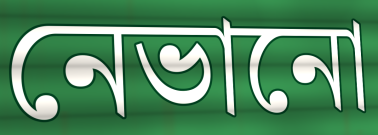
নেভানো